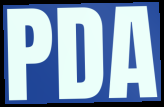
PDA